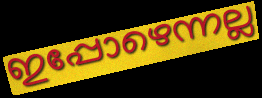
ഇപ്പോഴെന്നല്ല